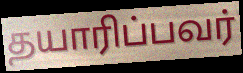
தயாரிப்பவர்